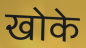
खोके